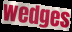
wedges